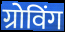
ग्रोविंग